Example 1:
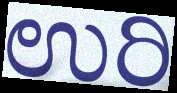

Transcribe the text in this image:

ಉರಿ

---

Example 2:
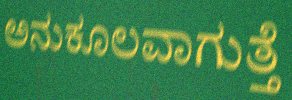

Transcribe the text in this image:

ಅನುಕೂಲವಾಗುತ್ತೆ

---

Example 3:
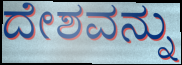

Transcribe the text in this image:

ದೇಶವನ್ನು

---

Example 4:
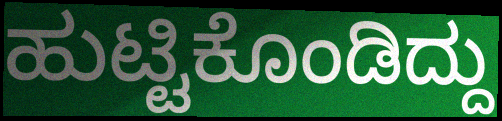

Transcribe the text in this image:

ಹುಟ್ಟಿಕೊಂಡಿದ್ದು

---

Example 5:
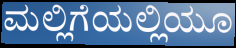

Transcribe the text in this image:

ಮಲ್ಲಿಗೆಯಲ್ಲಿಯೂ